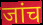
जांच